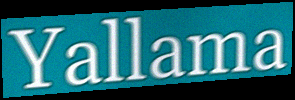
Yallama